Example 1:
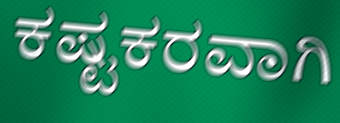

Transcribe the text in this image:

ಕಷ್ಟಕರವಾಗಿ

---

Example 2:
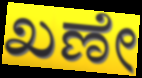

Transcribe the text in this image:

ಖಣೇ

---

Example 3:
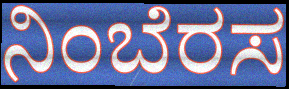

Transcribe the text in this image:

ನಿಂಬೆರಸ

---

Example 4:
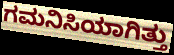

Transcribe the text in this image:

ಗಮನಿಸಿಯಾಗಿತ್ತು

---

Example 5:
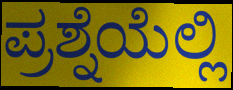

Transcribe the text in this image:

ಪ್ರಶ್ನೆಯೆಲ್ಲಿ